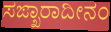
ಸಙ್ಖಾರಾದೀನಂ